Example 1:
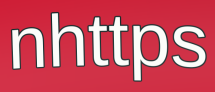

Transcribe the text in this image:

nhttps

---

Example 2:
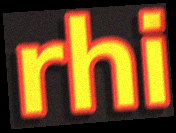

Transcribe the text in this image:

rhi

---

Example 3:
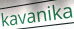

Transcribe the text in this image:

kavanika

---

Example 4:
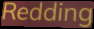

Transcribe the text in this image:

Redding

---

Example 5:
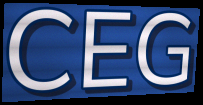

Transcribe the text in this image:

CEG